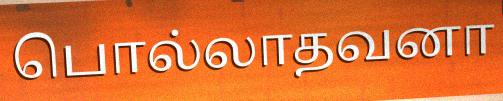
பொல்லாதவனா